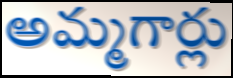
అమ్మగార్లు